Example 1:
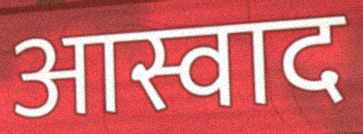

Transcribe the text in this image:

आस्‍वाद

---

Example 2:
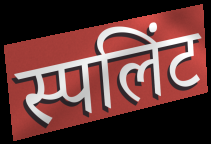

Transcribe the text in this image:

स्पलिंट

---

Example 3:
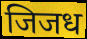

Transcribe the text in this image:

जिजध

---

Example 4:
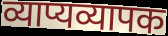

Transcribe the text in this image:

व्याप्यव्यापक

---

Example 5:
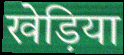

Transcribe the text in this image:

खेड़िया